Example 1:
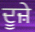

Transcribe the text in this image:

ਦੂਜ਼ੇ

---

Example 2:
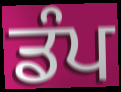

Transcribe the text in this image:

ਡੰਪ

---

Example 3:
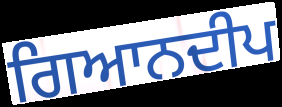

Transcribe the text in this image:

ਗਿਆਨਦੀਪ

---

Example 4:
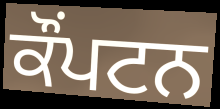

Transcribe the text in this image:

ਕੌਂਪਟਨ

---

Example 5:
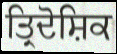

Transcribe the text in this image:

ਤ੍ਰਿਦੋਸ਼ਿਕ